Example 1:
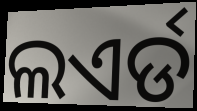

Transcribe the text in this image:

ଲଏର୍ଡ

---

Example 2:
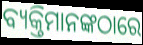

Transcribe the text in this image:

ବ୍ୟକ୍ତିମାନଙ୍କଠାରେ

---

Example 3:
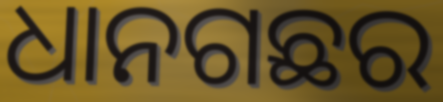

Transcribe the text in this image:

ଧାନଗଛର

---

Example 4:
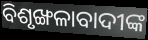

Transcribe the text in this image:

ବିଶୃଙ୍ଖଳାବାଦୀଙ୍କ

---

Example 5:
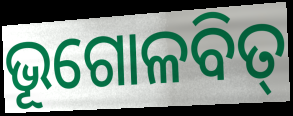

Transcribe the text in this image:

ଭୂଗୋଳବିତ୍